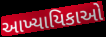
આખ્યાયિકાઓ